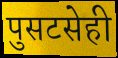
पुसटसेही